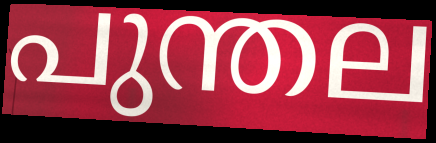
പുന്തല